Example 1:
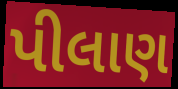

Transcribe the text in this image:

પીલાણ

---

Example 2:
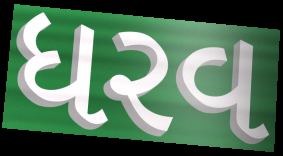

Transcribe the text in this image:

ધરવ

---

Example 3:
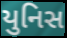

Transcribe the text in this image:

યુનિસ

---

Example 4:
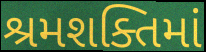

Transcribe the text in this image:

શ્રમશક્તિમાં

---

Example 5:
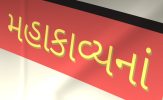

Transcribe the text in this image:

મહાકાવ્યનાં